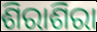
ଶିରାଶିରା